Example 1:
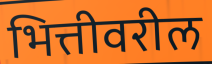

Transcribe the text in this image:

भित्तीवरील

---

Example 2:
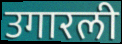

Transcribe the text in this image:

उगारली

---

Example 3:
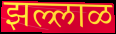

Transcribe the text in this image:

झल्लाळ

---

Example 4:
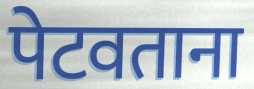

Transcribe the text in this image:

पेटवताना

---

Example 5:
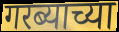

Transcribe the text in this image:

गरब्याच्या